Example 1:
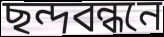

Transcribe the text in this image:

ছন্দবন্ধনে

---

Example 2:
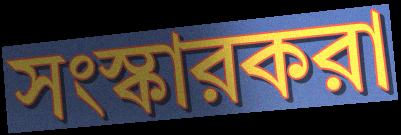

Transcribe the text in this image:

সংস্কারকরা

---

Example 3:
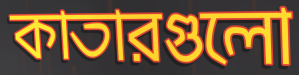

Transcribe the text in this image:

কাতারগুলো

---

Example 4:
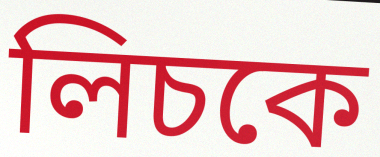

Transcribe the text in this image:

লিচকে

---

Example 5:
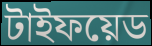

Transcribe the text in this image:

টাইফয়েড